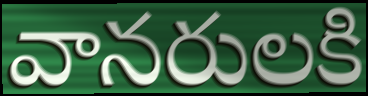
వానరులకి